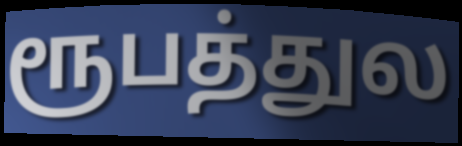
ரூபத்துல